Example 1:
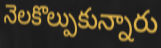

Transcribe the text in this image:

నెలకొల్పుకున్నారు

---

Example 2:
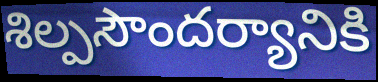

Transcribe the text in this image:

శిల్పసౌందర్యానికి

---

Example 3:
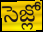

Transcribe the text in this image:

సెజ్లో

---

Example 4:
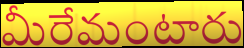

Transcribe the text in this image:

మీరేమంటారు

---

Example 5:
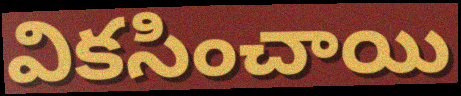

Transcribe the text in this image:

వికసించాయి